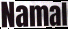
Namal